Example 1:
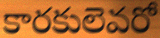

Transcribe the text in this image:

కారకులెవరో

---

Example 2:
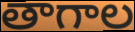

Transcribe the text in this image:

తాగాల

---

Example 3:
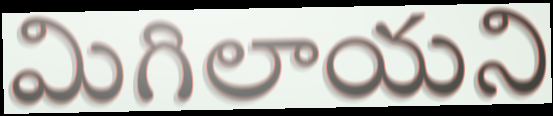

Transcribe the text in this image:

మిగిలాయని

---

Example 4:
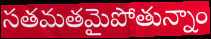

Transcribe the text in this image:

సతమతమైపోతున్నాం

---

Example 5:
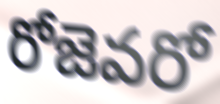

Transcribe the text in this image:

రోజెవరో